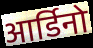
आर्डिनो